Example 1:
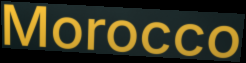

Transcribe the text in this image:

Morocco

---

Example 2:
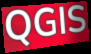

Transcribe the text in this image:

QGIS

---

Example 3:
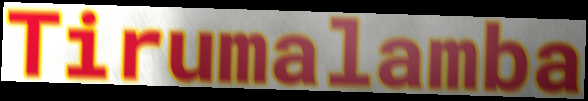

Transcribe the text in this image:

Tirumalamba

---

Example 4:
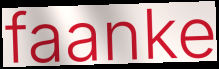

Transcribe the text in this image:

faanke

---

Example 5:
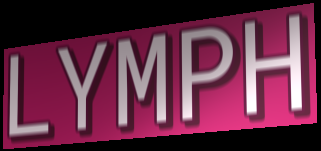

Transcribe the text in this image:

LYMPH